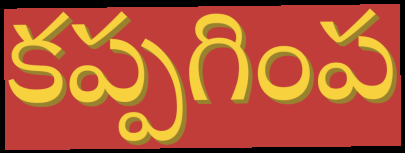
కప్పగింప